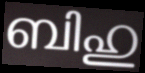
ബിഹു